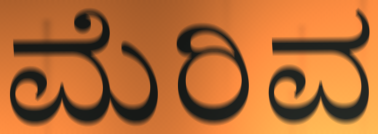
ಮೆರಿವ